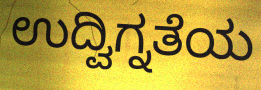
ಉದ್ವಿಗ್ನತೆಯ